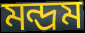
মন্দ্রম